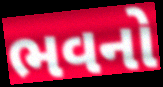
ભવનો